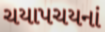
ચયાપચયનાં